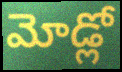
మోడ్లో